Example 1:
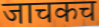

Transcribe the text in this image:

जाचकच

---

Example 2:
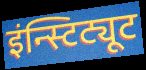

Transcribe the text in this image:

इंन्स्टिट्यूट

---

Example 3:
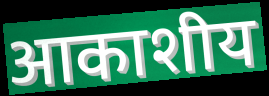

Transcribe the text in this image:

आकाशीय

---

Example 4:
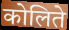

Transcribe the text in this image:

कोलिते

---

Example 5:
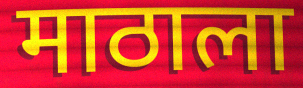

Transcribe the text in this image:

माठाला